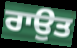
ਰਾਉਤ